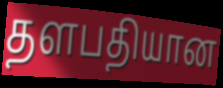
தளபதியான